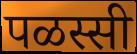
पळस्सी